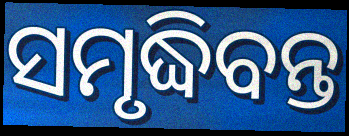
ସମୃଦ୍ଧିବନ୍ତ